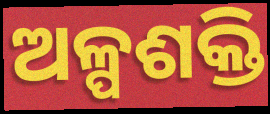
ଅଳ୍ପଶକ୍ତି